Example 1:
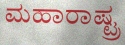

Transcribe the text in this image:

ಮಹಾರಾಷ್ಟ್ರ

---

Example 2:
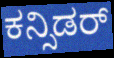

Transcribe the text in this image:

ಕನ್ಸಿಡರ್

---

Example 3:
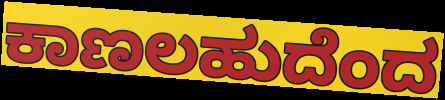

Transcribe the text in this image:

ಕಾಣಲಹುದೆಂದ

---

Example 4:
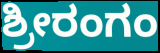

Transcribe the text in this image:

ಶ್ರೀರಂಗಂ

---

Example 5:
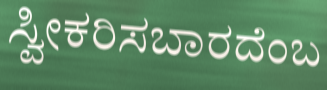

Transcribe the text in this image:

ಸ್ವೀಕರಿಸಬಾರದೆಂಬ